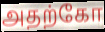
அதற்கோ